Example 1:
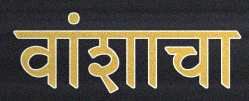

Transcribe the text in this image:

वांशाचा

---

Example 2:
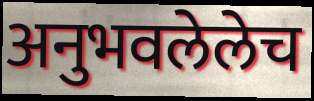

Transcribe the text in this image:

अनुभवलेलेच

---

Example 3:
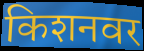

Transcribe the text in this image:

किशनवर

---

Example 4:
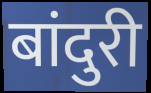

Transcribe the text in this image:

बांदुरी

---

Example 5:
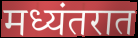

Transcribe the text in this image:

मध्यंतरात